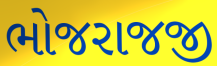
ભોજરાજજી